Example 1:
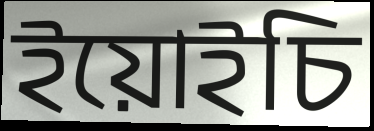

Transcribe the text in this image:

ইয়োইচি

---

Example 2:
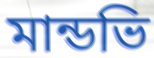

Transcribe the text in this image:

মান্ডভি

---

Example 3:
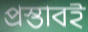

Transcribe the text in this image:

প্রস্তাবই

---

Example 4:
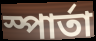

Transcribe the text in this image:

স্পার্তা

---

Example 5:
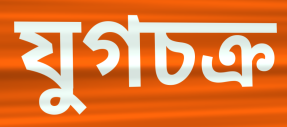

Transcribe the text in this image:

যুগচক্র